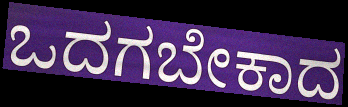
ಒದಗಬೇಕಾದ